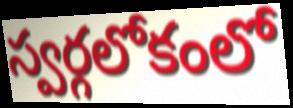
స్వర్గలోకంలో